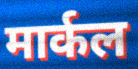
मार्कल